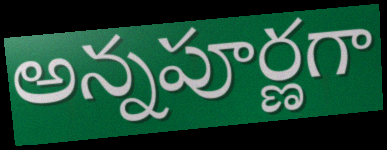
అన్నపూర్ణగా